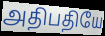
அதிபதியே